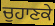
ਚੁਹਾਣਕੇ